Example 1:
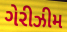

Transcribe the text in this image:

ગેરીઝીમ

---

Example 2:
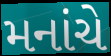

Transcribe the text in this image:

મનાંચે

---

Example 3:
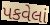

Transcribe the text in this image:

પકવેલાં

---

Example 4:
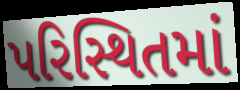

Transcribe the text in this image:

પરિસ્થિતમાં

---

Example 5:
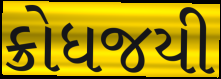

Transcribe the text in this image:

ક્રોધજયી